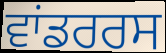
ਵਾਂਡਰਰਸ